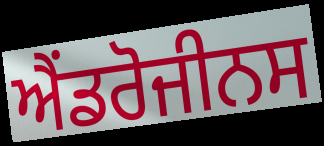
ਐਂਡਰੋਜੀਨਸ